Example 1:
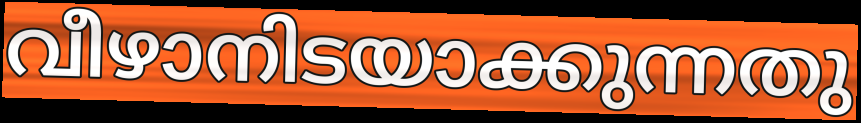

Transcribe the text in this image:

വീഴാനിടയാക്കുന്നതു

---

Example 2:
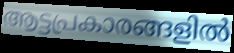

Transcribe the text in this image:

ആട്ടപ്രകാരങ്ങളിൽ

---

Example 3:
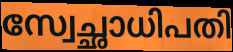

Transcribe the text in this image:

സ്വേച്ഛാധിപതി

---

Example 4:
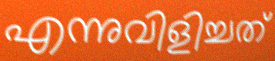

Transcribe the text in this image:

എന്നുവിളിച്ചത്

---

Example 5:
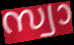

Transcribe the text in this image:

സ്വാ